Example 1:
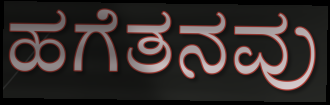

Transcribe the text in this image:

ಹಗೆತನವು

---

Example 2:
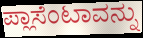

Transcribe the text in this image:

ಪ್ಲಾಸೆಂಟಾವನ್ನು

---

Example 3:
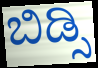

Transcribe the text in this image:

ಬಿಡ್ಸಿ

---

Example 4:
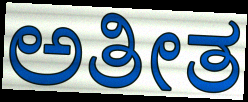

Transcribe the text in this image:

ಅತೀತ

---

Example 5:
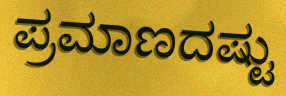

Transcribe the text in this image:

ಪ್ರಮಾಣದಷ್ಟು